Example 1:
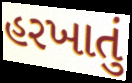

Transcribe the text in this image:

હરખાતું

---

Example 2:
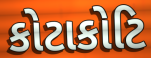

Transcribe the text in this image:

કોટાકોટિ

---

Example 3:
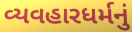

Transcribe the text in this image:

વ્યવહારધર્મનું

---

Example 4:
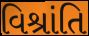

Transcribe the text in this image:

વિશ્રાંતિ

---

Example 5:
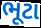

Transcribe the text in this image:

ભૂટા